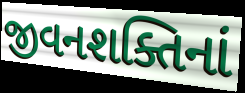
જીવનશક્તિનાં